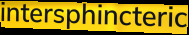
intersphincteric